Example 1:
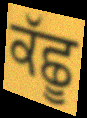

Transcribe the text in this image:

ਕੱਛੂ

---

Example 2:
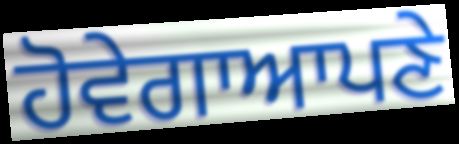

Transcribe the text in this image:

ਹੋਵੇਗਾਆਪਣੇ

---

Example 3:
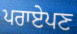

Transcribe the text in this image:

ਪਰਾਏਪਣ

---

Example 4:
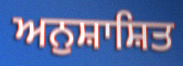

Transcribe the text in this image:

ਅਨੁਸ਼ਾਸ਼ਿਤ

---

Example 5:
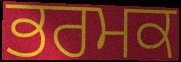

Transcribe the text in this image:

ਭਰਮਕ